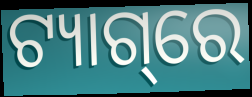
ଟ୍ୟାଗ୍‌ରେ